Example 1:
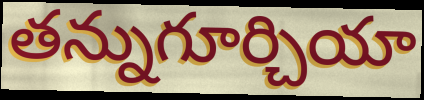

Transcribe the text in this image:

తన్నుగూర్చియా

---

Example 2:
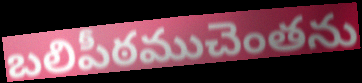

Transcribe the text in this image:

బలిపీఠముచెంతను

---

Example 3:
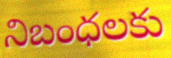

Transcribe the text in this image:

నిబంధలకు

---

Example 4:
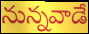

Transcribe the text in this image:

నున్నవాడే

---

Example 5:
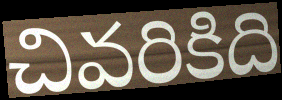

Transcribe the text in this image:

చివరికిది